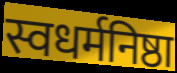
स्वधर्मनिष्ठा